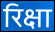
रिक्षा